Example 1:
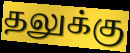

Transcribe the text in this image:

தலுக்கு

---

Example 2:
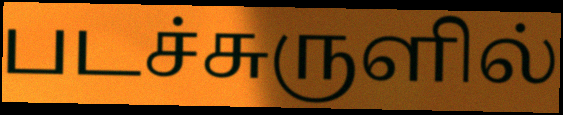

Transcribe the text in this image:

படச்சுருளில்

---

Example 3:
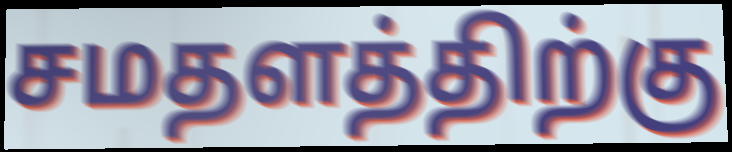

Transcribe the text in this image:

சமதளத்திற்கு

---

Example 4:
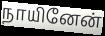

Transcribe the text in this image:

நாயினேன்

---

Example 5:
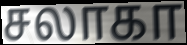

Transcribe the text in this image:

சலாகா